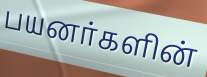
பயனர்களின்